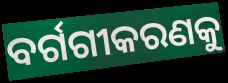
ବର୍ଗଗୀକରଣକୁ